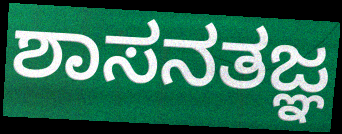
ಶಾಸನತಜ್ಞ